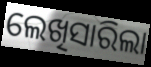
ଲେଖିସାରିଲା